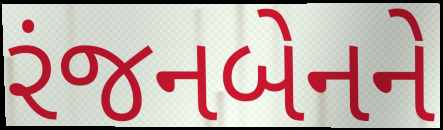
રંજનબેનને